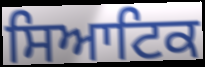
ਸਿਆਟਿਕ